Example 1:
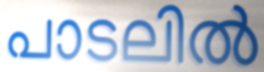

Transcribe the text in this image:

പാടലിൽ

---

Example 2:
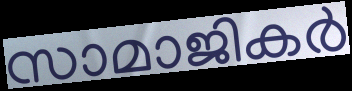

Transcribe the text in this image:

സാമാജികർ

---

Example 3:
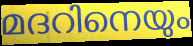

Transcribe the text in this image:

മദറിനെയും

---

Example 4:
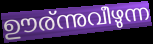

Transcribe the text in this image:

ഊര്ന്നുവീഴുന്ന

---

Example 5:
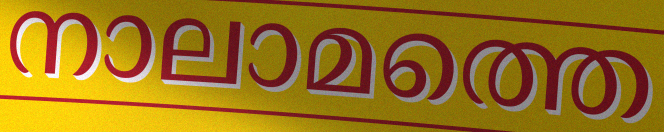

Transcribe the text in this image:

നാലാമത്തെ